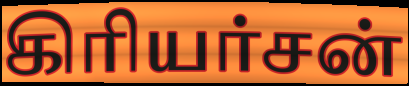
கிரியர்சன்